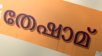
തേഷാമ്